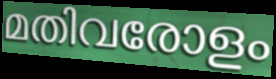
മതിവരോളം